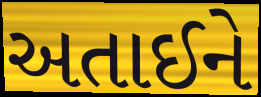
અતાઈને